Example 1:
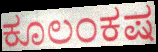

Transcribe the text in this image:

ಕೂಲಂಕಷ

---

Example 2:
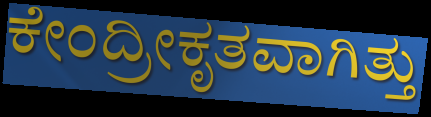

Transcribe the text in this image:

ಕೇಂದ್ರೀಕೃತವಾಗಿತ್ತು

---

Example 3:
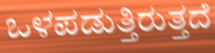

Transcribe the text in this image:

ಒಳಪಡುತ್ತಿರುತ್ತದೆ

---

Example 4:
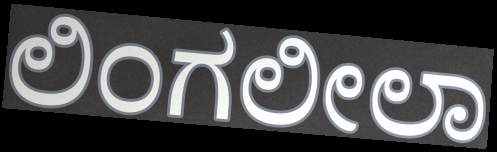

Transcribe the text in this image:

ಲಿಂಗಲೀಲಾ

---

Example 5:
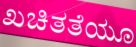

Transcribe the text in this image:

ಖಚಿತತೆಯೂ